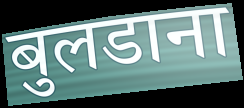
बुलडाना